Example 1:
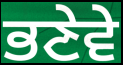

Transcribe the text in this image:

ਭਣੇਵੇ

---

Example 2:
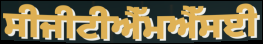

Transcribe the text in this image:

ਸੀਜੀਟੀਐੱਮਐੱਸਈ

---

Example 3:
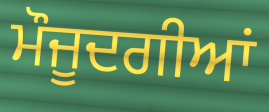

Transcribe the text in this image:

ਮੌਜੂਦਗੀਆਂ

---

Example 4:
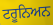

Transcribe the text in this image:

ਟਰੂਨਿਅਨ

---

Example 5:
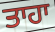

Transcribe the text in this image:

ਤਾਹਾ